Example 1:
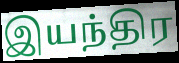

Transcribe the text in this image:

இயந்திர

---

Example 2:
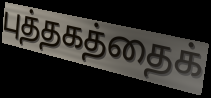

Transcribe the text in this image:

புத்தகத்தைக்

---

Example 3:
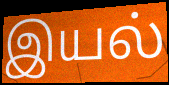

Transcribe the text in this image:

இயல்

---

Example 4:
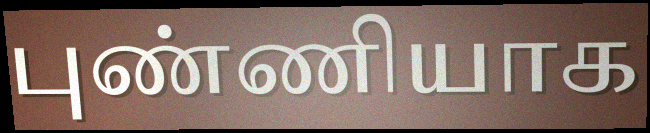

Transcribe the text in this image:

புண்ணியாக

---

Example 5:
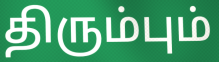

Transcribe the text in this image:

திரும்பும்